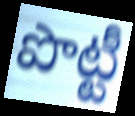
పొట్టీ